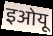
इओयू